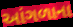
આંગળાના